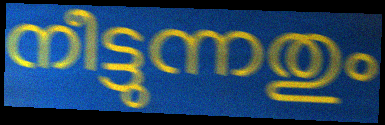
നീട്ടുന്നതും